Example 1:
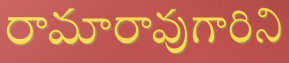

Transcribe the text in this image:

రామారావుగారిని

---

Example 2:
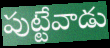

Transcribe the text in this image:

పుట్టేవాడు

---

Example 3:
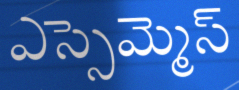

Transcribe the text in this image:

ఎస్సెమ్మెస్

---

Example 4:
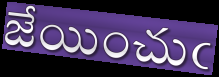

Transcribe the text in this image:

జేయించుఁ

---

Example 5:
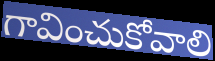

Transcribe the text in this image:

గావించుకోవాలి